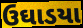
ઉઘાડયા